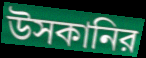
উসকানির